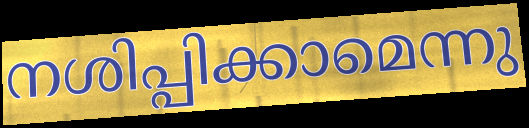
നശിപ്പിക്കാമെന്നു